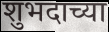
शुभदाच्या